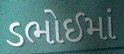
ડભોઈમાં